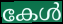
കേൾ